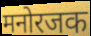
मनोरजक